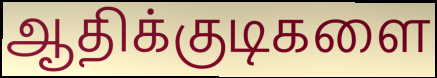
ஆதிக்குடிகளை